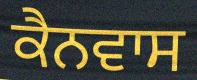
ਕੈਨਵਾਸ